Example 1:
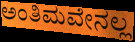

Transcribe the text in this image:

ಅಂತಿಮವೇನಲ್ಲ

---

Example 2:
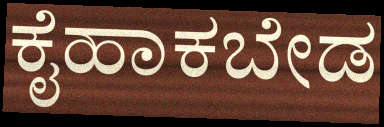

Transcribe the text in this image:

ಕೈಹಾಕಬೇಡ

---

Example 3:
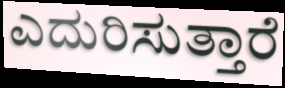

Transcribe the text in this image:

ಎದುರಿಸುತ್ತಾರೆ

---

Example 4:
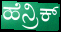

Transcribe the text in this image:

ಹೆನ್ರಿಕ್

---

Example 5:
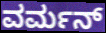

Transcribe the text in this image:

ವರ್ಮನ್